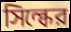
সিল্কের